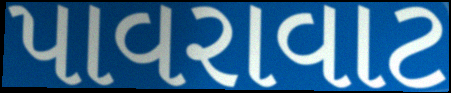
પાવરાવાટ